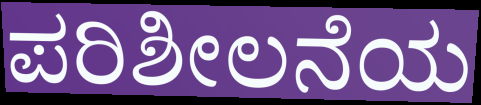
ಪರಿಶೀಲನೆಯ